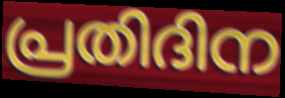
പ്രതിദിന